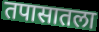
तपासातला